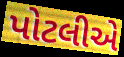
પોટલીએ